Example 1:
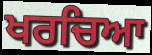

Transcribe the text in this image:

ਖਰਚਿਆ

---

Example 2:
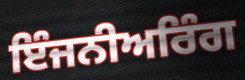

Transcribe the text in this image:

ਇੰਜਨੀਅਰਿੰਗ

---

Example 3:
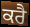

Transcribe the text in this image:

ਕਰੈ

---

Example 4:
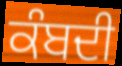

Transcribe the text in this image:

ਕੰਬਦੀ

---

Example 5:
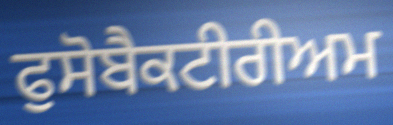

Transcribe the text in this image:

ਫੁਸੋਬੈਕਟੀਰੀਅਮ